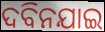
ଦବିନଯାଇ